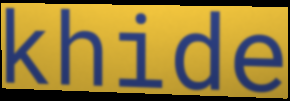
khide